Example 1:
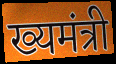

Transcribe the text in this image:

ख्यमंत्री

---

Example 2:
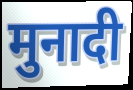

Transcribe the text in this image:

मुनादी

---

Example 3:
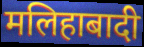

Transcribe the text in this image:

मलिहाबादी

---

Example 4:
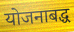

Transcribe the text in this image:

योजनाबद्ध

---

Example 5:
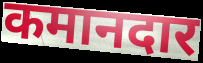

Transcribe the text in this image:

कमानदार